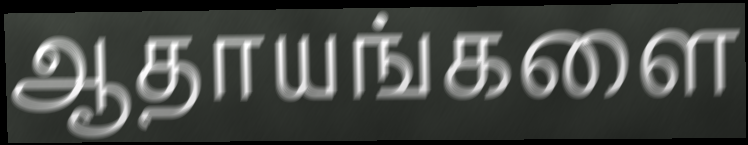
ஆதாயங்களை